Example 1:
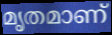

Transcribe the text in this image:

മൃതമാണ്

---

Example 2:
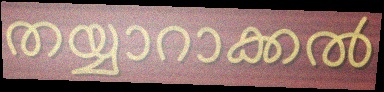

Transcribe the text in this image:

തയ്യാറാക്കൽ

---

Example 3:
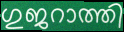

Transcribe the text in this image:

ഗുജറാത്തി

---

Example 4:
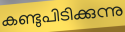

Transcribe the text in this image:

കണ്ടുപിടിക്കുന്നു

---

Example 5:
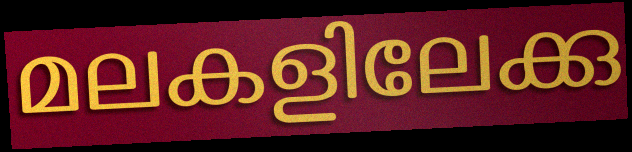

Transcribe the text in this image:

മലകളിലേക്കു